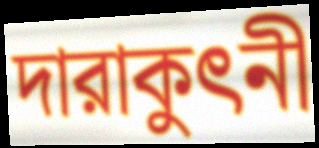
দারাকুৎনী